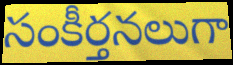
సంకీర్తనలుగా